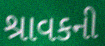
શ્રાવકની